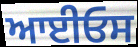
ਆਈਓਸ